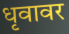
धृवावर